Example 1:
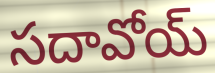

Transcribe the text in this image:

సదావోయ్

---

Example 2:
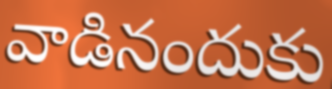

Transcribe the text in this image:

వాడినందుకు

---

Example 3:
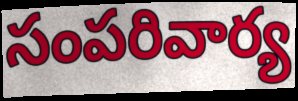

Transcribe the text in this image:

సంపరివార్య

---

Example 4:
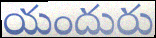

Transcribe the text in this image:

యందురు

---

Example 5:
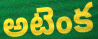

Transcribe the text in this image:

అటెంక